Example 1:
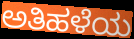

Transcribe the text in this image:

ಅತಿಹಳೆಯ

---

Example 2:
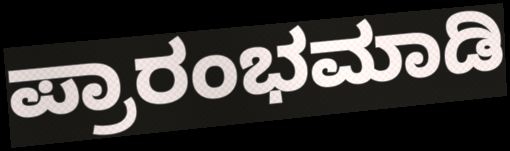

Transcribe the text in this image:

ಪ್ರಾರಂಭಮಾಡಿ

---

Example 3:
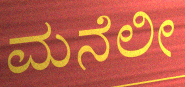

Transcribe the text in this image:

ಮನೆಲೀ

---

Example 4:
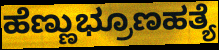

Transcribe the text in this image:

ಹೆಣ್ಣುಭ್ರೂಣಹತ್ಯೆ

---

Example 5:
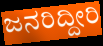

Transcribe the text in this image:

ಜನರಿದ್ದೀರಿ